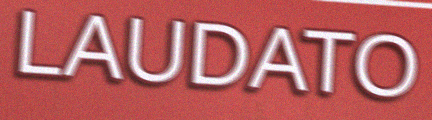
LAUDATO